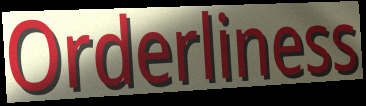
Orderliness